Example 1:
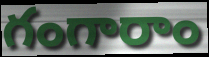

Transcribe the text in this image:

గంగారాం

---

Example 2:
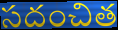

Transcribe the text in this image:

సదంచిత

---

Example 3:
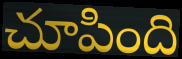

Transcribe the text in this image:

చూపింది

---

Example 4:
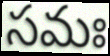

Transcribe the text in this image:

సమః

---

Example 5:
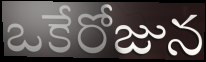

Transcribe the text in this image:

ఒకేరోజున